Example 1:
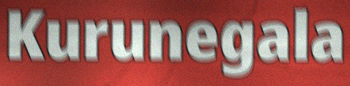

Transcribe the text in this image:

Kurunegala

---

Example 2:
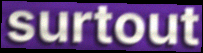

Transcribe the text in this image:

surtout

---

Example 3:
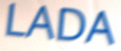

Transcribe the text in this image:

LADA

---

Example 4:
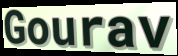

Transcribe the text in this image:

Gourav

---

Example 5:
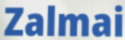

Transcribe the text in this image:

Zalmai